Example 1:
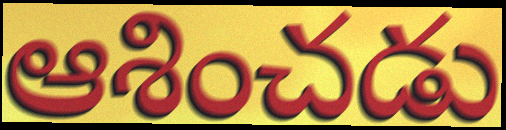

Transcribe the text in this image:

ఆశించడు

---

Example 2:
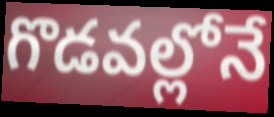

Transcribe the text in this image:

గొడవల్లోనే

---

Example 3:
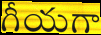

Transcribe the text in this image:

గీయగా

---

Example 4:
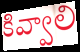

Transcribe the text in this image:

కివ్వాలి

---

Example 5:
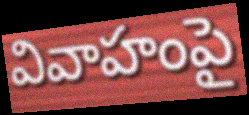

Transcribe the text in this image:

వివాహంపై